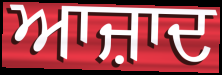
ਆਜ਼ਾਦ